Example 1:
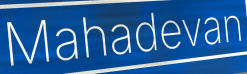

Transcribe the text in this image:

Mahadevan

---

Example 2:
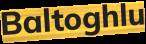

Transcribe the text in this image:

Baltoghlu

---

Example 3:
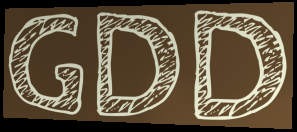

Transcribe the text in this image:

GDD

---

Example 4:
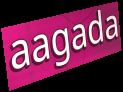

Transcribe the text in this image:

aagada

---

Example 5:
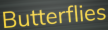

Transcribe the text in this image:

Butterflies